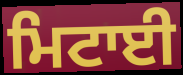
ਮਿਟਾਈ